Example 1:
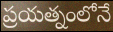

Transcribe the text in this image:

ప్రయత్నంలోనే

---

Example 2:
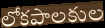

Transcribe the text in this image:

లోకపాలకుల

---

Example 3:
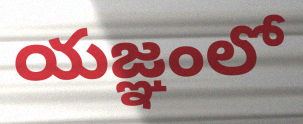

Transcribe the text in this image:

యజ్ఞంలో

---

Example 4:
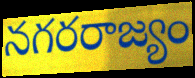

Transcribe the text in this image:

నగరరాజ్యం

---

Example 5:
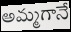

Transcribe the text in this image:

అమ్మగానే